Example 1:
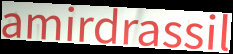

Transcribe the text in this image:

amirdrassil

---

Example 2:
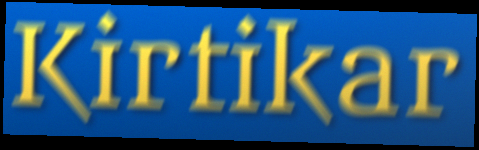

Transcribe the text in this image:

Kirtikar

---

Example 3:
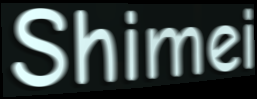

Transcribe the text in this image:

Shimei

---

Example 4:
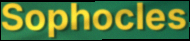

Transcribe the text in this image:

Sophocles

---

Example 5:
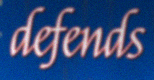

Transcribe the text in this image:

defends